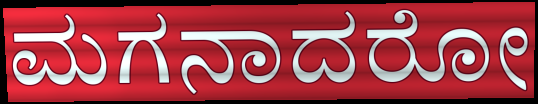
ಮಗನಾದರೋ